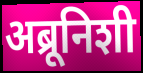
अब्रूनिशी